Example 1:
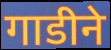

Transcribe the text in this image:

गाडीने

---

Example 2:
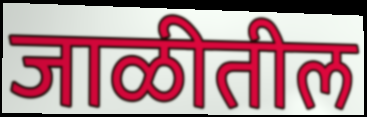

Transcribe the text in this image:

जाळीतील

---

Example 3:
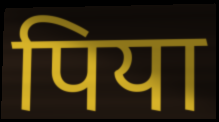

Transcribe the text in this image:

पिया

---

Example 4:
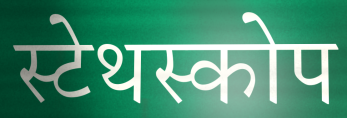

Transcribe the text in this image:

स्टेथस्कोप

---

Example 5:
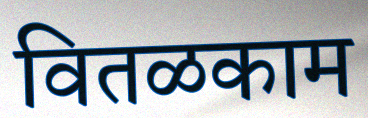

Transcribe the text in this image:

वितळकाम